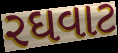
રઘવાટ